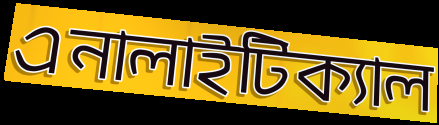
এনালাইটিক্যাল